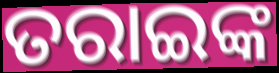
ତରାଇଙ୍କ